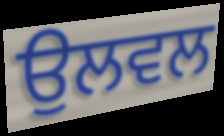
ਉਲਵਲ